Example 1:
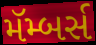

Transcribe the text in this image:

મૅમ્બર્સ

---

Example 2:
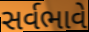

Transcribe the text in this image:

સર્વભાવે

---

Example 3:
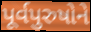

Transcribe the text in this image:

પૂર્વપુરુષોને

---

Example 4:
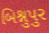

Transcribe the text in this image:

બિશ્નુપુર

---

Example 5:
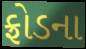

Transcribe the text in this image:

ફ્રોડના